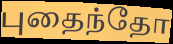
புதைந்தோ